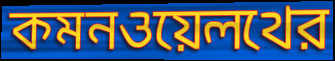
কমনওয়েলথের